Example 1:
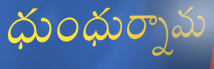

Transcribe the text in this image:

ధుంధుర్నామ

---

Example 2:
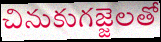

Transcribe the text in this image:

చినుకుగజ్జెలతో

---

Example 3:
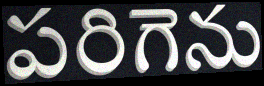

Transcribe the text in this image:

పరిగెను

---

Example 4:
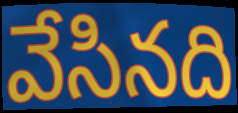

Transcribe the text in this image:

వేసినది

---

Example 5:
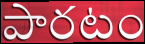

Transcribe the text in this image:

పారటం